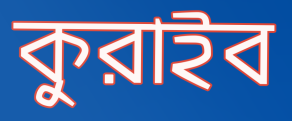
কুরাইব